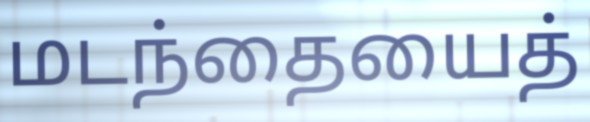
மடந்தையைத்